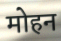
मोहन